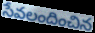
సేవలందించిన